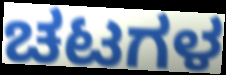
ಚಟಗಳ